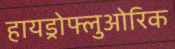
हायड्रोफ्लुओरिक